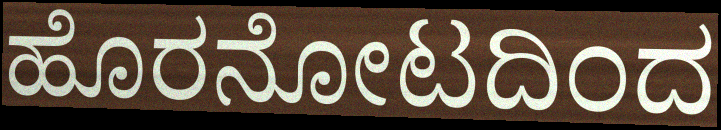
ಹೊರನೋಟದಿಂದ